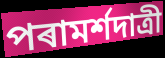
পৰামৰ্শদাত্ৰী